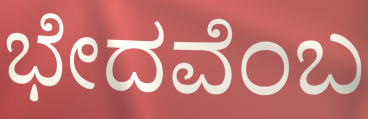
ಭೇದವೆಂಬ